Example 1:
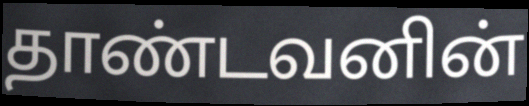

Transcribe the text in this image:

தாண்டவனின்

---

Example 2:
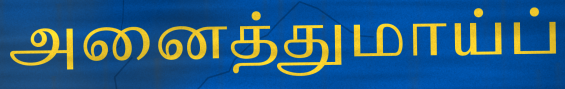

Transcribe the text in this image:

அனைத்துமாய்ப்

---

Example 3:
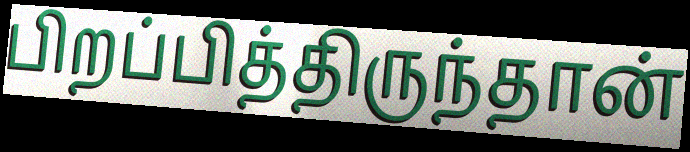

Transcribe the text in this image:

பிறப்பித்திருந்தான்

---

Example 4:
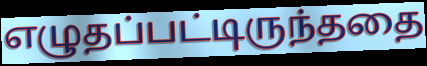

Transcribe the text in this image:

எழுதப்பட்டிருந்ததை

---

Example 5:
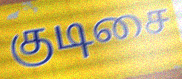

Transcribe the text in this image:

குடிசை